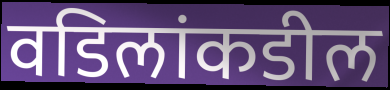
वडिलांकडील